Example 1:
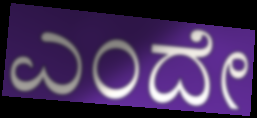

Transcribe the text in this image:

ಎಂದೇ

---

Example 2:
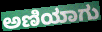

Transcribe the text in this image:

ಅಣಿಯಾಗು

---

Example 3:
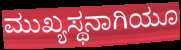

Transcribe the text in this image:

ಮುಖ್ಯಸ್ಥನಾಗಿಯೂ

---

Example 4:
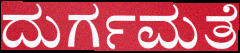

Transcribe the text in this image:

ದುರ್ಗಮತೆ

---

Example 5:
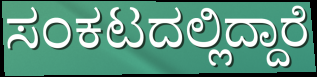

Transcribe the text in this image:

ಸಂಕಟದಲ್ಲಿದ್ದಾರೆ